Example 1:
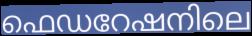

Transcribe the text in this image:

ഫെഡറേഷനിലെ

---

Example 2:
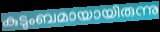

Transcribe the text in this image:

കുടുംബമായായിരുന്നു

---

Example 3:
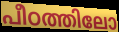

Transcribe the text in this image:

പീഠത്തിലോ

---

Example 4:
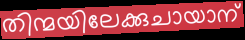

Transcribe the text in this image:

തിന്മയിലേക്കുചായാന്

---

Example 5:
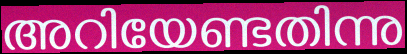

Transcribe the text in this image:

അറിയേണ്ടതിന്നു